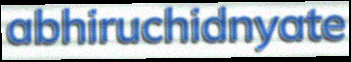
abhiruchidnyate